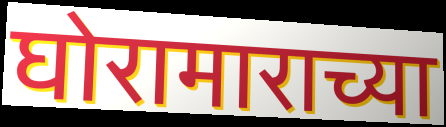
घोरामाराच्या